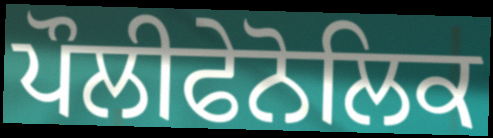
ਪੌਲੀਫੇਨੋਲਿਕ